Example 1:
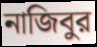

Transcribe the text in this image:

নাজিবুর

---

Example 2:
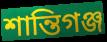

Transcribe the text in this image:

শান্তিগঞ্জ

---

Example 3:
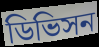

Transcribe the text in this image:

ডিভিসন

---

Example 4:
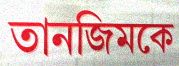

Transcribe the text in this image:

তানজিমকে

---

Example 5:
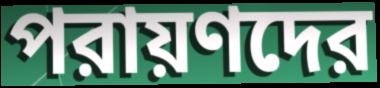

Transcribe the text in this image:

পরায়ণদের